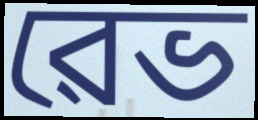
ৱেভ